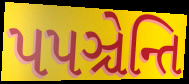
પપઞ્ચેન્તિ